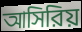
আসিরিয়